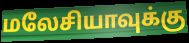
மலேசியாவுக்கு